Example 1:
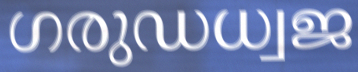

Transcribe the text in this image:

ഗരുഡധ്വജ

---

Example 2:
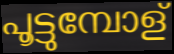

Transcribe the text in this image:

പൂട്ടുമ്പോള്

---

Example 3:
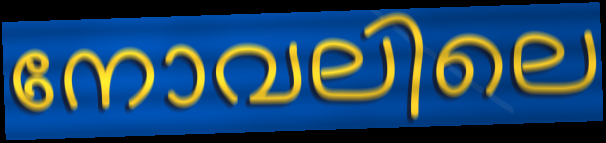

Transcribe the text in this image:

നോവലിലെ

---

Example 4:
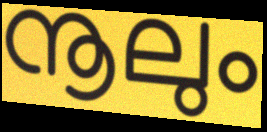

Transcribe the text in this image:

നൂലും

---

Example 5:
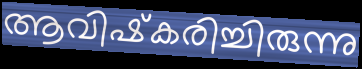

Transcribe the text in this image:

ആവിഷ്‌കരിച്ചിരുന്നു